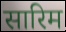
सारिम